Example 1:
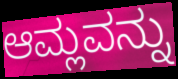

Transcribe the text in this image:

ಆಮ್ಲವನ್ನು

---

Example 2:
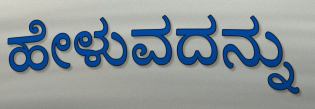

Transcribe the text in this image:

ಹೇಳುವದನ್ನು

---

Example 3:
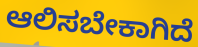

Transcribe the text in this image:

ಆಲಿಸಬೇಕಾಗಿದೆ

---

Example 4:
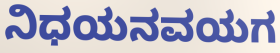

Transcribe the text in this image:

ನಿಧಯನವಯಗ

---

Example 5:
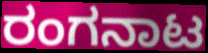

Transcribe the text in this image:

ರಂಗನಾಟ